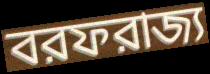
বরফরাজ্য